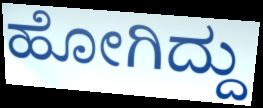
ಹೋಗಿದ್ದು